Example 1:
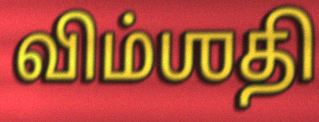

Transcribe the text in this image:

விம்ஶதி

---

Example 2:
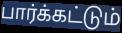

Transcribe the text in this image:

பார்க்கட்டும்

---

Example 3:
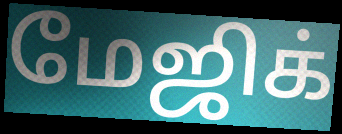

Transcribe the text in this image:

மேஜிக்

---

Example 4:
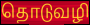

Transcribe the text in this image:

தொடுவழி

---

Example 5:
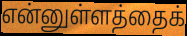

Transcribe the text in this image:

என்னுள்ளத்தைக்